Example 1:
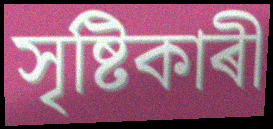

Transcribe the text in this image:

সৃষ্টিকাৰী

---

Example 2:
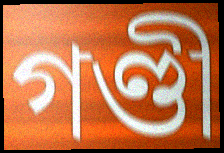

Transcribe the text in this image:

গণ্ডী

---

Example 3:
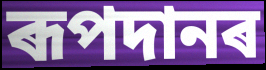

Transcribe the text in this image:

ৰূপদানৰ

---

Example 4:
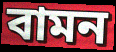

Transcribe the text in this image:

বামন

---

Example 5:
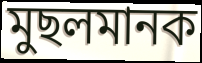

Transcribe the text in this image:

মুছলমানক